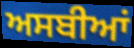
ਅਸਬੀਆਂ